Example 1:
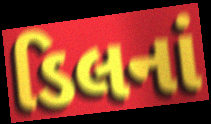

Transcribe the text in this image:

ડિલનાં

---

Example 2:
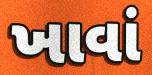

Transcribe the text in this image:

ખાવાં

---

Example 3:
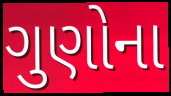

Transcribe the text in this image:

ગુણોના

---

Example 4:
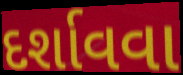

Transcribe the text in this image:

દર્શાવવા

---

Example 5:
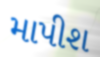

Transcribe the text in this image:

માપીશ